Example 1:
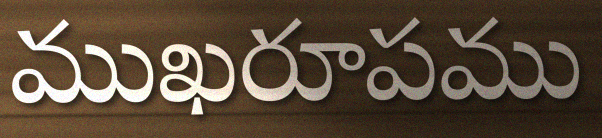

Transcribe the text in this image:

ముఖరూపము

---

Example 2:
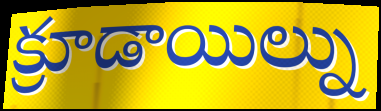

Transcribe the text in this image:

క్రూడాయిల్ను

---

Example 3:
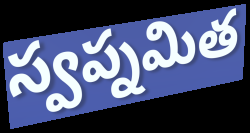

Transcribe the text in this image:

స్వప్నమిత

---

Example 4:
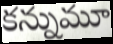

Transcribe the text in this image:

కన్నుమూ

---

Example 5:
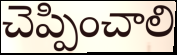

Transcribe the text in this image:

చెప్పించాలి